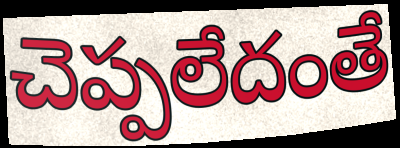
చెప్పలేదంతే